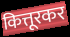
कित्तूरकर